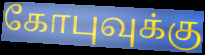
கோபுவுக்கு